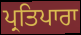
ਪ੍ਰਤਿਪਾਰਾ